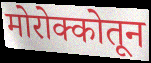
मोरोक्कोतून